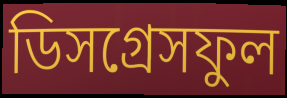
ডিসগ্রেসফুল